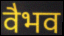
वैभव